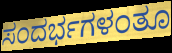
ಸಂದರ್ಭಗಳಂತೂ